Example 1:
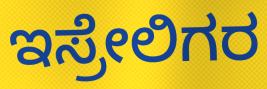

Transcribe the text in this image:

ಇಸ್ರೇಲಿಗರ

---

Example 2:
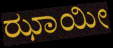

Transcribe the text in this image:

ಝಾಯೀ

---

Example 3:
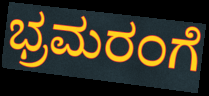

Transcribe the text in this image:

ಭ್ರಮರಂಗೆ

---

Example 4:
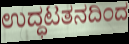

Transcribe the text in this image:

ಉದ್ಧಟತನದಿಂದ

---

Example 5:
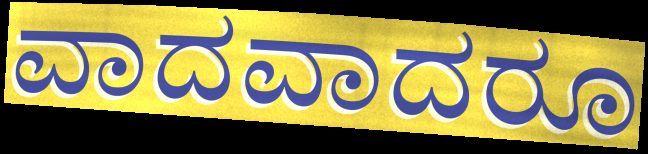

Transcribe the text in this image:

ವಾದವಾದರೂ